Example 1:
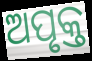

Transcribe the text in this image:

ଅପୃକ୍ତ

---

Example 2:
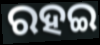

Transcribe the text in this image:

ରହଇ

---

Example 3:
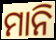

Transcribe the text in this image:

ମାନି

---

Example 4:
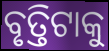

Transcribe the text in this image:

ବୃତ୍ତିଟାକୁ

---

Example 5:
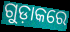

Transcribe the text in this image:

ଗୁଡ଼ାକରେ